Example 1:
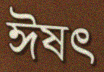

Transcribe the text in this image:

ঈষত্‍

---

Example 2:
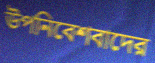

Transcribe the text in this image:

উপনিবেশবাদের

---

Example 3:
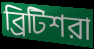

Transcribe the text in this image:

ব্রিটিশরা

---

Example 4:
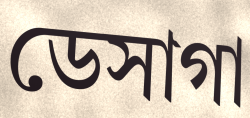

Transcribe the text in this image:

ডেসাগা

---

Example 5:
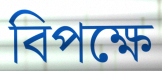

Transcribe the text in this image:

বিপক্ষে